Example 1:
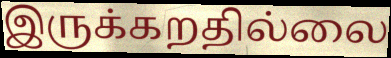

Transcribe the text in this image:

இருக்கறதில்லை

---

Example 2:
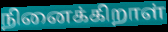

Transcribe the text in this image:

நினைக்கிறாள்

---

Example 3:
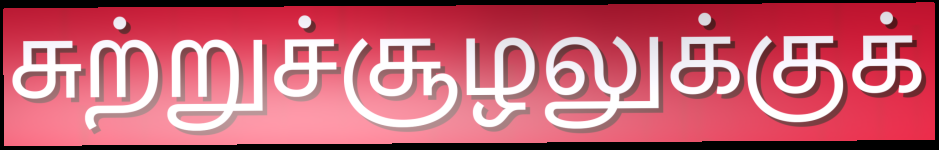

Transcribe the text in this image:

சுற்றுச்சூழலுக்குக்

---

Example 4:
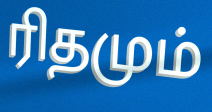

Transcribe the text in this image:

ரிதமும்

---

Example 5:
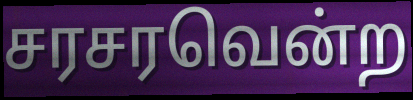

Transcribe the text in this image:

சரசரவென்ற